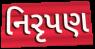
નિરૃપણ